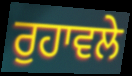
ਰੁਹਾਵਲੇ